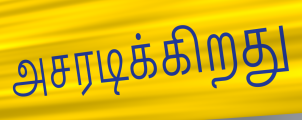
அசரடிக்கிறது